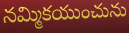
నమ్మికయుంచును